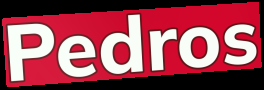
Pedros